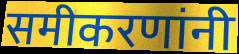
समीकरणांनी